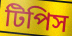
টিপিস